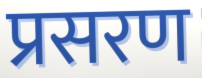
प्रसरण